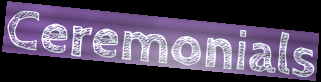
Ceremonials